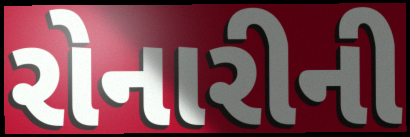
રોનારીની